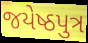
જયેષ્ઠપુત્ર